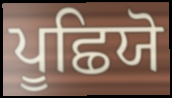
ਪੂਛਿਯੋ